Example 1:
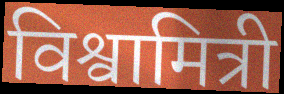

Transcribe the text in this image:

विश्वामित्री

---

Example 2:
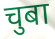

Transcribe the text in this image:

चुबा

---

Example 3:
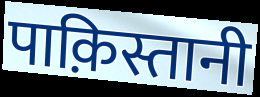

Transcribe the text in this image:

पाक़िस्तानी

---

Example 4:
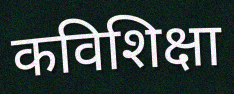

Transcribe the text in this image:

कविशिक्षा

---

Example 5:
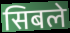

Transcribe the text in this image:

सिबले